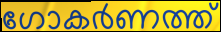
ഗോകർണത്ത്